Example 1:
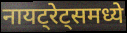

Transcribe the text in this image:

नायट्रेट्समध्ये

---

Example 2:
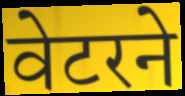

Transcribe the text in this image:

वेटरने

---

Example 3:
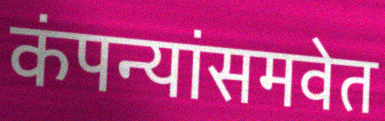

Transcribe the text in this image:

कंपन्यांसमवेत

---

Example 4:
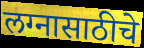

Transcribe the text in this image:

लग्नासाठीचे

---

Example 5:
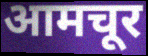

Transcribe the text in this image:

आमचूर